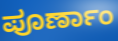
ಪೂರ್ಣಾಂ